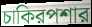
চাকিরপশার